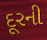
દૂરની